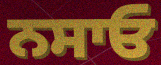
ਨਸਾਓ